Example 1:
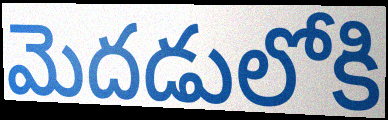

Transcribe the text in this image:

మెదడులోకి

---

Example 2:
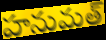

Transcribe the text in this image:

హనుమత్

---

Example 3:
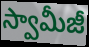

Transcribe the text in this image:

స్వామీజీ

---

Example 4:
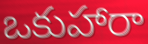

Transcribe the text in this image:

ఒకుహారా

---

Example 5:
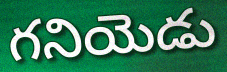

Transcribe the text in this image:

గనియెడు